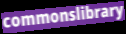
commonslibrary